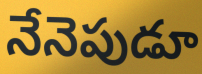
నేనెపుడూ